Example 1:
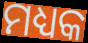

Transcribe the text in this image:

ମଧ୍ଯକ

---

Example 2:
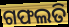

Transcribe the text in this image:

ଗଫଲତି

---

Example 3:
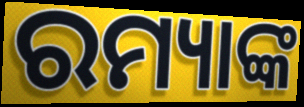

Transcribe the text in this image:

ରମ୍ୟାଙ୍କ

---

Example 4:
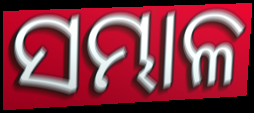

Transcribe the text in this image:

ସମ୍ଭାଳ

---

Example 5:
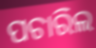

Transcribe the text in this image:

ପଚାରିଲ